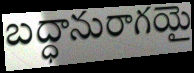
బద్ధానురాగయై